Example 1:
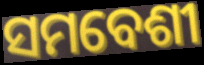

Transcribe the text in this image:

ସମବେଶୀ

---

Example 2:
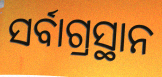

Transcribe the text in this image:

ସର୍ବାଗ୍ରସ୍ଥାନ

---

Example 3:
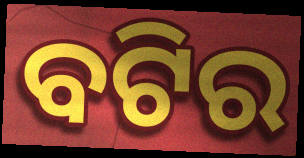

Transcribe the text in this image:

ବଟିର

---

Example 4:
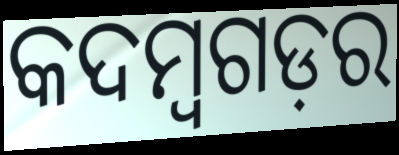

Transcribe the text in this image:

କଦମ୍ବଗଡ଼ର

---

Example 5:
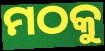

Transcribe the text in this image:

ମଠକୁ